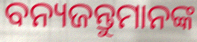
ବନ୍ୟଜନ୍ତୁମାନଙ୍କ